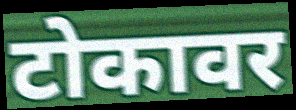
टोकावर